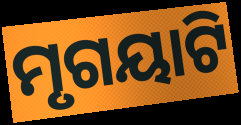
ମୃଗୟାଟି